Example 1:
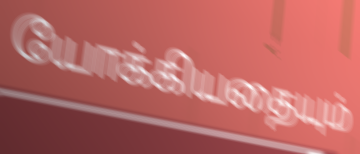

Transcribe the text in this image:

யோக்கியதையும்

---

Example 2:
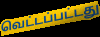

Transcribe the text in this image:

வெட்டப்பட்டது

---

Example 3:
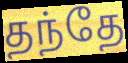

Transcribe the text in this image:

தந்தே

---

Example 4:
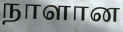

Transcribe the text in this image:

நாளான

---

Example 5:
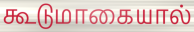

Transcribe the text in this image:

கூடுமாகையால்